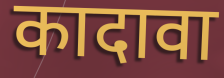
कादावा